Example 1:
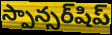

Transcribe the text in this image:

స్పాన్సర్‌షిప్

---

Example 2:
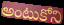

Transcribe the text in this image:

అంటుకోని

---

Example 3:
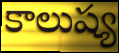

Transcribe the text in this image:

కాలుష్య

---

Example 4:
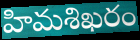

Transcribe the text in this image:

హిమశిఖరం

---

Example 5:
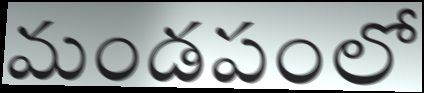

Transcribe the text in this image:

మండపంలో